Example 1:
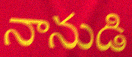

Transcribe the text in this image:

నానుడి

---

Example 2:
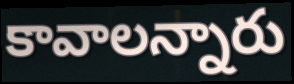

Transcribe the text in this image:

కావాలన్నారు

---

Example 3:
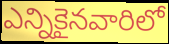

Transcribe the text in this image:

ఎన్నికైనవారిలో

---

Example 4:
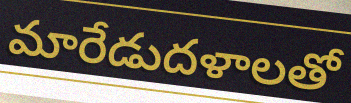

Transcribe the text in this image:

మారేడుదళాలతో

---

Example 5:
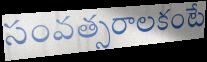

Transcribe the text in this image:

సంవత్సరాలకంటే